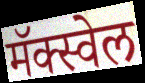
मॅक्स्वेल